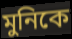
মুনিকে